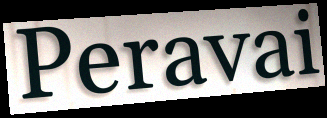
Peravai